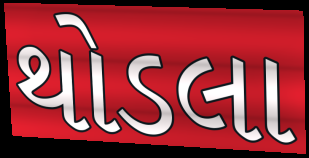
થોડલા